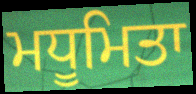
ਮਧੂਮਿਤਾ